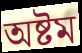
অষ্টম